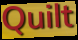
Quilt